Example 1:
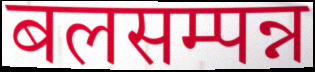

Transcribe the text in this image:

बलसम्पन्न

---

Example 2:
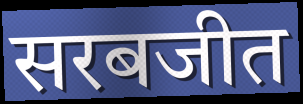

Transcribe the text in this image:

सरबजीत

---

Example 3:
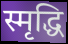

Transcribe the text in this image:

स्मृद्धि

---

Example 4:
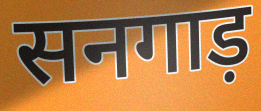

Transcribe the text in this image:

सनगाड़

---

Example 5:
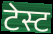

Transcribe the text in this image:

टेस्‍ट